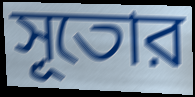
সূতোর